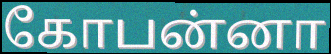
கோபன்னா